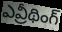
ఎవ్రీథింగ్